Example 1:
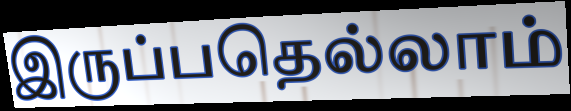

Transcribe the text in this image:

இருப்பதெல்லாம்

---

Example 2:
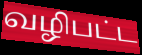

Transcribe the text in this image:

வழிபட்ட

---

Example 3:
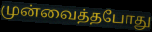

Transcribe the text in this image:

முன்வைத்தபோது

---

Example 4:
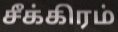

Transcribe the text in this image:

சீக்கிரம்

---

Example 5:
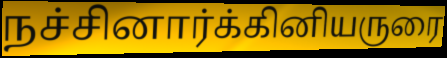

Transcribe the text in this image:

நச்சினார்க்கினியருரை